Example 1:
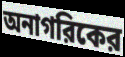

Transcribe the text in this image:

অনাগরিকের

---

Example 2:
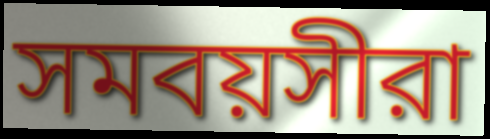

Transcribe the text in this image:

সমবয়সীরা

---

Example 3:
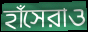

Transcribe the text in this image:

হাঁসেরাও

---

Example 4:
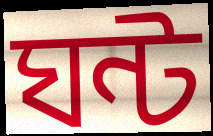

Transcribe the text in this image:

ঘন্ট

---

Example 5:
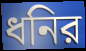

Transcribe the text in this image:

ধনির